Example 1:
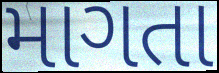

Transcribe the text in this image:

માગતા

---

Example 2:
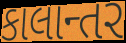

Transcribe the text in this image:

કાલાન્તર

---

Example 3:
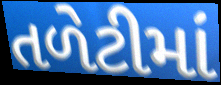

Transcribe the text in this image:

તળેટીમાં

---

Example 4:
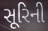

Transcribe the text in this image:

સૂરિની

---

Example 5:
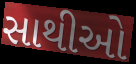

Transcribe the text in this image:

સાથીઓ